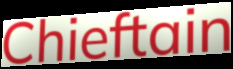
Chieftain